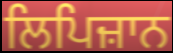
ਲਿਪਿਜ਼ਾਨ